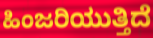
ಹಿಂಜರಿಯುತ್ತಿದೆ